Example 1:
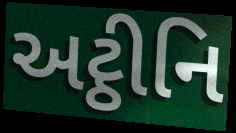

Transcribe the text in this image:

અટ્ઠીનિ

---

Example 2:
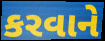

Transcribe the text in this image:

કરવાને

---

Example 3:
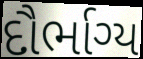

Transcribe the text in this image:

દૌર્ભાગ્ય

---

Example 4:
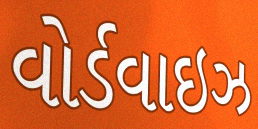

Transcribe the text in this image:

વોર્ડવાઇઝ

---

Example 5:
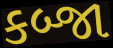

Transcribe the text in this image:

કબ્જા